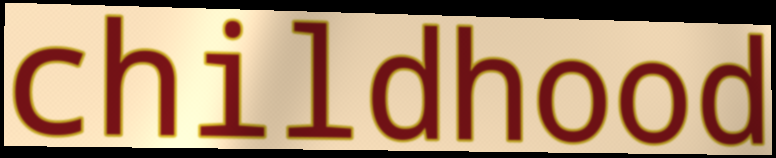
childhood